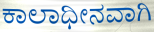
ಕಾಲಾಧೀನವಾಗಿ